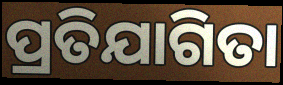
ପ୍ରତିଯାଗିତା